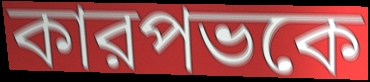
কারপভকে